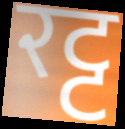
रट्ट